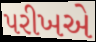
પરીખએ